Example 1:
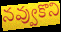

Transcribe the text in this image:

నవ్వుకొని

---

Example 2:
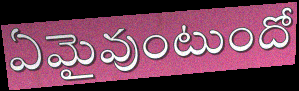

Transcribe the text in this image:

ఏమైవుంటుందో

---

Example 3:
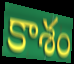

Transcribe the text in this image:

కాశం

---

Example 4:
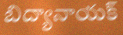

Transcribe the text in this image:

బిద్యానాయక్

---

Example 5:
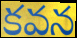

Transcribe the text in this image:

కవన